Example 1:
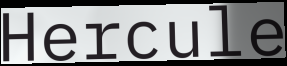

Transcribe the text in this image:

Hercule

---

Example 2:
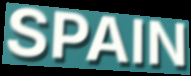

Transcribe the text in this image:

SPAIN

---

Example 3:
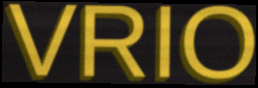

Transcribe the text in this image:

VRIO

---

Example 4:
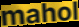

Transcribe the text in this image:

mahol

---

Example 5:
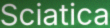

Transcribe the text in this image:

Sciatica